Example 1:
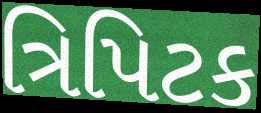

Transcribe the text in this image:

ત્રિપિટક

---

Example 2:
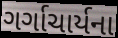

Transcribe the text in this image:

ગર્ગાચાર્યના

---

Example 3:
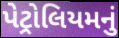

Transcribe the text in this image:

પેટ્રોલિયમનું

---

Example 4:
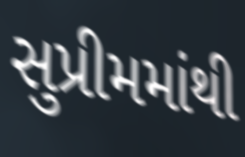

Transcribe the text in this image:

સુપ્રીમમાંથી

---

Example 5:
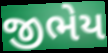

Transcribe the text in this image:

જીભેય